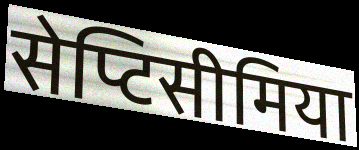
सेप्टिसीमिया